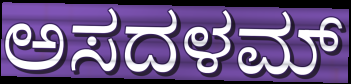
ಅಸದಳಮ್